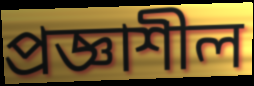
প্রজ্ঞাশীল